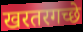
खरतरगच्छे